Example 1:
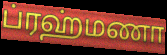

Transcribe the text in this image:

ப்ரஹ்மணா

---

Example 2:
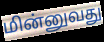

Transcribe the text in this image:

மின்னுவது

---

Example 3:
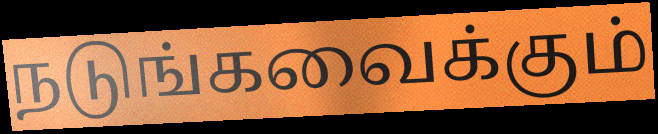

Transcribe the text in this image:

நடுங்கவைக்கும்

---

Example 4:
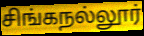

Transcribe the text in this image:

சிங்கநல்லூர்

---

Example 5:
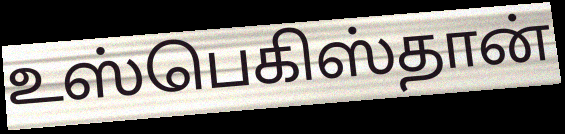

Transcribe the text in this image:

உஸ்பெகிஸ்தான்